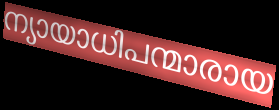
ന്യായാധിപന്മാരായ